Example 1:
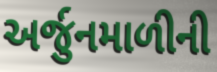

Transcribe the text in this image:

અર્જુનમાળીની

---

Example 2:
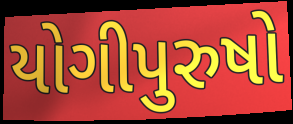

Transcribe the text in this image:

યોગીપુરુષો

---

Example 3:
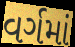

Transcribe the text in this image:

વર્ગમાં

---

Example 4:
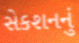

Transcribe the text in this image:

સેકશનનું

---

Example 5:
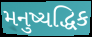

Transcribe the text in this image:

મનુષ્યદ્ધિક